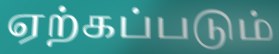
ஏற்கப்படும்